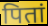
पितां